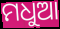
ମଧୁଆ